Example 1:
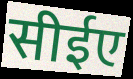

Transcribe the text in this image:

सीईए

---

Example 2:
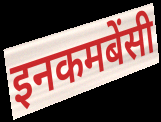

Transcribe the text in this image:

इनकमबेंसी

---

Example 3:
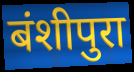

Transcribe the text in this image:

बंशीपुरा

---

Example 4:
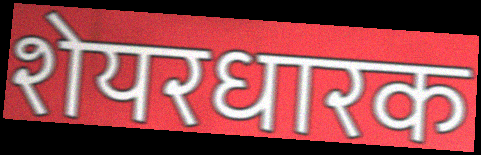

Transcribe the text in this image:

शेयरधारक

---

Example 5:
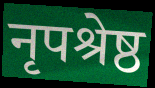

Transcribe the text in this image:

नृपश्रेष्ठ